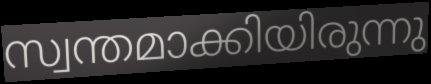
സ്വന്തമാക്കിയിരുന്നു